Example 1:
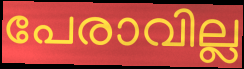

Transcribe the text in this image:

പേരാവില്ല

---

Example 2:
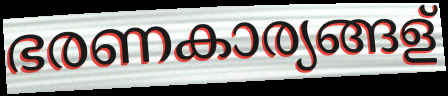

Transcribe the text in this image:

ഭരണകാര്യങ്ങള്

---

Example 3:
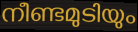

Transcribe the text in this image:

നീണ്ടമുടിയും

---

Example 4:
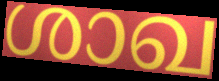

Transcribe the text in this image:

ശാഖ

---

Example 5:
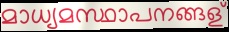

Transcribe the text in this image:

മാധ്യമസ്ഥാപനങ്ങള്